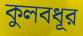
কুলবধূর